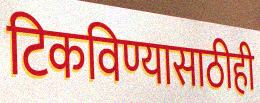
टिकविण्यासाठीही